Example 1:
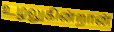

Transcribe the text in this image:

உழலுகின்றான்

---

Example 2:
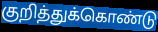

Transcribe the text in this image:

குறித்துக்கொண்டு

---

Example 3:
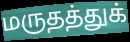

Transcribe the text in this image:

மருதத்துக்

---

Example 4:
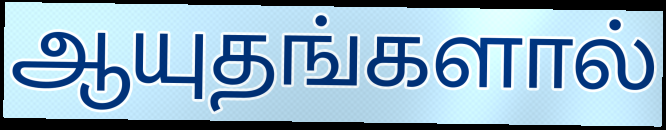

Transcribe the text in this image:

ஆயுதங்களால்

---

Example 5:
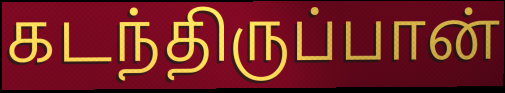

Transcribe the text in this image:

கடந்திருப்பான்